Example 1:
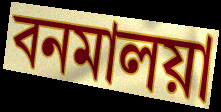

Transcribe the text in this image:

বনমালয়া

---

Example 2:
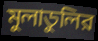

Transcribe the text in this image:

মুলাডুলির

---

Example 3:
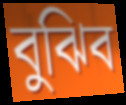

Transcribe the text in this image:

বুঝিব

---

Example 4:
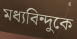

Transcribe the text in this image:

মধ্যবিন্দুকে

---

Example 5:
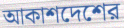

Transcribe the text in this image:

আকাশদেশের